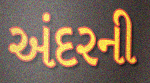
અંદરની